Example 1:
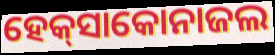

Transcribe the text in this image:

ହେକ୍‌ସାକୋନାଜଲ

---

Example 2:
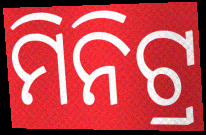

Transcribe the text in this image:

ମିନିଟ୍ର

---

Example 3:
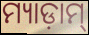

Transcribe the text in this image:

ମ୍ୟାଡ଼ାମ୍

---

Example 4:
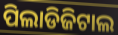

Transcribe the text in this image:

ପିଲାଡିଜିଟାଲ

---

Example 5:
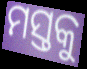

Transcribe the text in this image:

ମସ୍ତକୁ